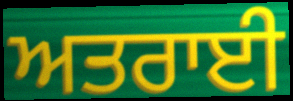
ਅਤਰਾਈ